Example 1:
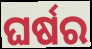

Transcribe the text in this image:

ଘର୍ଷର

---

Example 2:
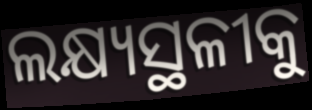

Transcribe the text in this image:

ଲକ୍ଷ୍ୟସ୍ଥଳୀକୁ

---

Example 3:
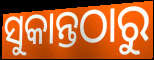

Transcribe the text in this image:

ସୁକାନ୍ତଠାରୁ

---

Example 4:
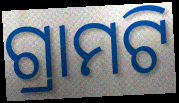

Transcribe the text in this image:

ଗ୍ରାମଟି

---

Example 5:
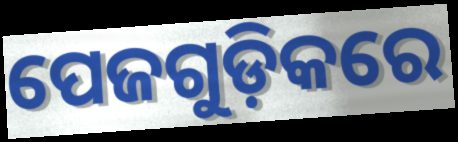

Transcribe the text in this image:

ପେଜଗୁଡ଼ିକରେ